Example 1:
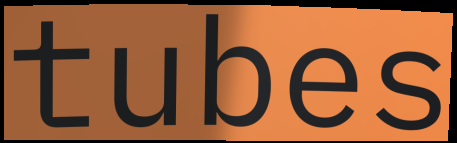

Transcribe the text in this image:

tubes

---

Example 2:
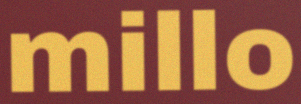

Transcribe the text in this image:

millo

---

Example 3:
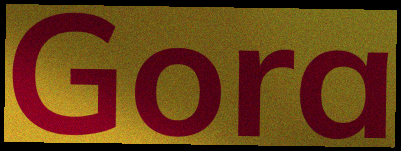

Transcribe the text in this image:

Gora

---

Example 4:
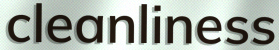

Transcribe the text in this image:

cleanliness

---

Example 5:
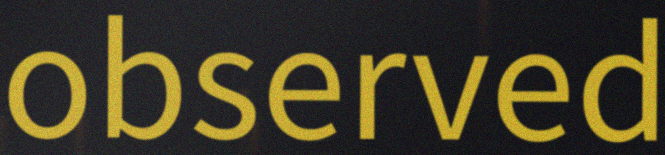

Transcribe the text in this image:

observed